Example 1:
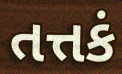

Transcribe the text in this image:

તત્તકં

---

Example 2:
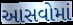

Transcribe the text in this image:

આસવોમાં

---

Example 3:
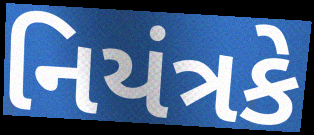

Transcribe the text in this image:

નિયંત્રકે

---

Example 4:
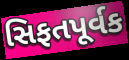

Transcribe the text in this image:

સિફતપૂર્વક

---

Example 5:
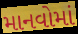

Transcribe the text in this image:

માનવોમાં